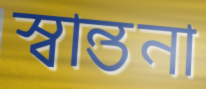
স্বান্তনা